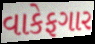
વાકેફગાર